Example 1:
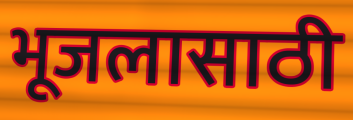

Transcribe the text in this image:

भूजलासाठी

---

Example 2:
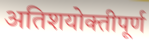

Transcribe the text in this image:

अतिशयोक्‍तीपूर्ण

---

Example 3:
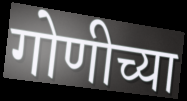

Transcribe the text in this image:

गोणीच्या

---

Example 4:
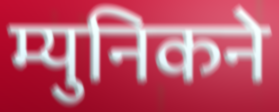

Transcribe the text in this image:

म्युनिकने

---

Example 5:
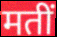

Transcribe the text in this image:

मतीं